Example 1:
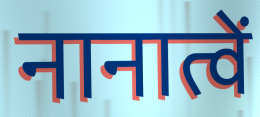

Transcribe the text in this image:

नानात्वें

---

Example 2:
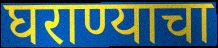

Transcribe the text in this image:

घराण्याचा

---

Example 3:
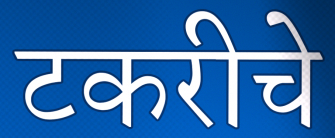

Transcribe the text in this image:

टकरीचे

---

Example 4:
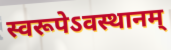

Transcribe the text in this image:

स्वरूपेऽवस्थानम्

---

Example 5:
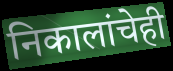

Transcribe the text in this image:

निकालांचेही